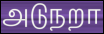
அடுநறா